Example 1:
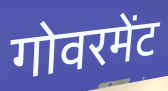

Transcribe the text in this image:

गोवरमेंट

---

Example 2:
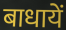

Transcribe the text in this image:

बाधायें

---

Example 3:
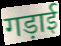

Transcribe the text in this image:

गड़ाई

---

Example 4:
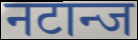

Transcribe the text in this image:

नटान्ज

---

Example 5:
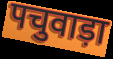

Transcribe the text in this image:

पचुवाड़ा